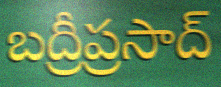
బద్రీప్రసాద్